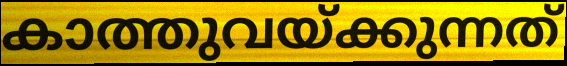
കാത്തുവയ്ക്കുന്നത്